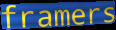
framers